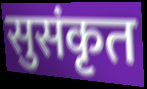
सुसंकृत